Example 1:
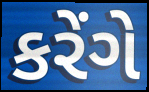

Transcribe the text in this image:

કરેંગે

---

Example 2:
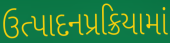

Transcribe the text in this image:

ઉત્પાદનપ્રક્રિયામાં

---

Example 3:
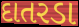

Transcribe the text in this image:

દાતરડા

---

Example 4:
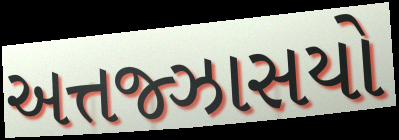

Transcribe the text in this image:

અત્તજ્ઝાસયો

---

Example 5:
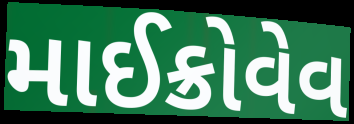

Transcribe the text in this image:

માઈક્રોવેવ